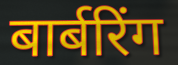
बार्बरिंग